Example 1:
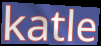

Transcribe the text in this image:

katle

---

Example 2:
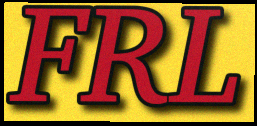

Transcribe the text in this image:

FRL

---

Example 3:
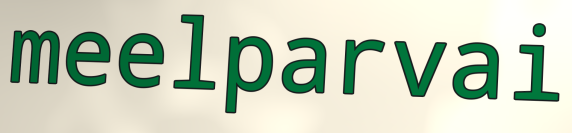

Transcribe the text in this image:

meelparvai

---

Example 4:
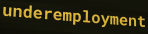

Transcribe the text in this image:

underemployment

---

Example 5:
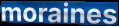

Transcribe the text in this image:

moraines